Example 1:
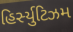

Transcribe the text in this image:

હિર્સ્યુટિઝમ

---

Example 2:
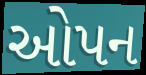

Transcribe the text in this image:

ઓપન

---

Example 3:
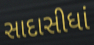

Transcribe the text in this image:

સાદાસીધાં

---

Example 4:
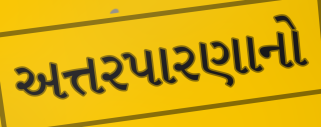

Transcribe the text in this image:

અત્તરપારણાનો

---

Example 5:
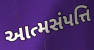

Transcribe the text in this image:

આત્મસંપત્તિ